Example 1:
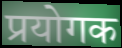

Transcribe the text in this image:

प्रयोगक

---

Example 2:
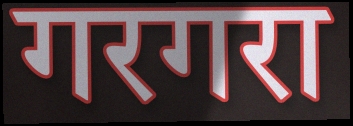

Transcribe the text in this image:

गरगरा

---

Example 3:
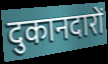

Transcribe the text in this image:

दुकानदारों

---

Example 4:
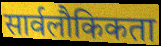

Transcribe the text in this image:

सार्वलौकिकता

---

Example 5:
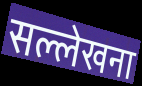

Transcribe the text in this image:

सल्लेखना